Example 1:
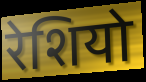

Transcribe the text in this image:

रेशियो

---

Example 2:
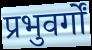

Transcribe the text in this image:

प्रभुवर्गों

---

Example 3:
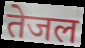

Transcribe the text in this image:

तेजल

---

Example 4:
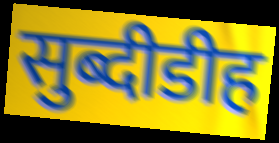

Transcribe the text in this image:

सुब्दीडीह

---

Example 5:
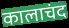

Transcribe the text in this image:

कालाचंद